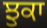
ਝੁਕਾ